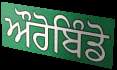
ਔਰੋਬਿੰਡੋ